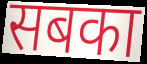
सबका